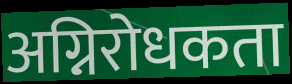
अग्निरोधकता